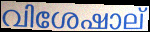
വിശേഷാല്